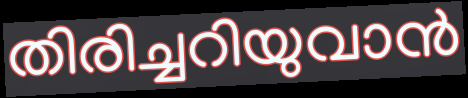
തിരിച്ചറിയുവാൻ